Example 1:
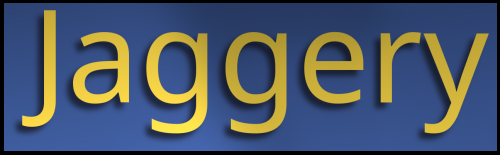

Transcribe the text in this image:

Jaggery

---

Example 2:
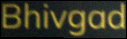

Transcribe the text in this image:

Bhivgad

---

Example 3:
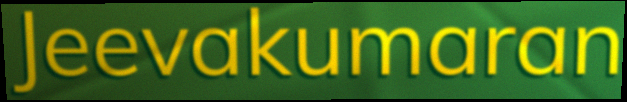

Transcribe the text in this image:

Jeevakumaran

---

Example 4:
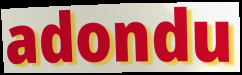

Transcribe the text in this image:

adondu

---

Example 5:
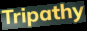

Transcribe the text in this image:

Tripathy